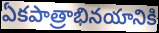
ఏకపాత్రాభినయానికి